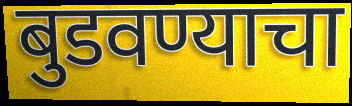
बुडवण्याचा